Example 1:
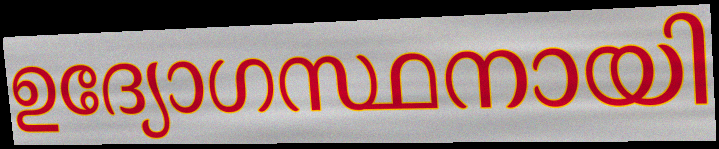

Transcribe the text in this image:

ഉദ്യോഗസ്ഥനായി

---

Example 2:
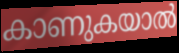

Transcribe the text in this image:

കാണുകയാൽ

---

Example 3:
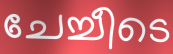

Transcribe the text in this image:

ചേച്ചീടെ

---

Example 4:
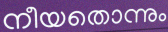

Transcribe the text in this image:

നീയതൊന്നും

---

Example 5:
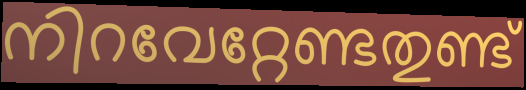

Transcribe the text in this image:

നിറവേറ്റേണ്ടതുണ്ട്